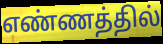
எண்ணத்தில்